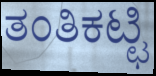
ತಂತಿಕಟ್ಟಿ